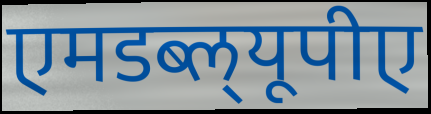
एमडब्ल्यूपीए